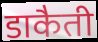
डाकैती